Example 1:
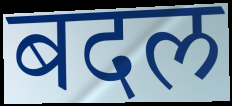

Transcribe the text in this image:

बदल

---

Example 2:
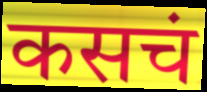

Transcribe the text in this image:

कसचं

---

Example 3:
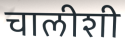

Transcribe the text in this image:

चालीशी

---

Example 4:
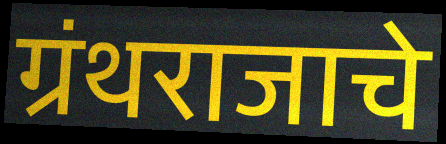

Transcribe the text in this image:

ग्रंथराजाचे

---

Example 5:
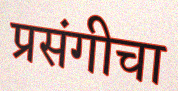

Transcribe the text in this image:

प्रसंगीचा